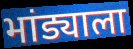
भांड्याला